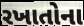
રખાતોના